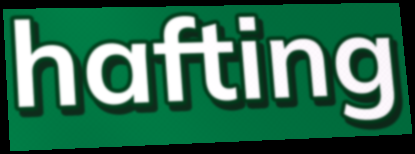
hafting